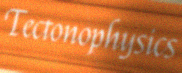
Tectonophysics